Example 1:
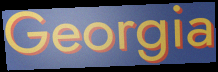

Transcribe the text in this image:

Georgia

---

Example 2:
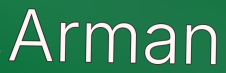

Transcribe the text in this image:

Arman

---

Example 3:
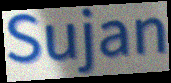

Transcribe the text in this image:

Sujan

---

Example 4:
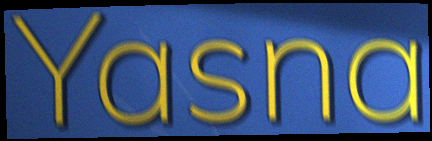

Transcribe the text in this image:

Yasna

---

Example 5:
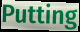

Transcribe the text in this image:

Putting